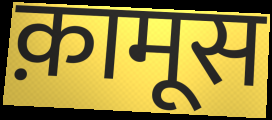
क़ामूस